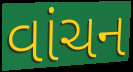
વાંચન